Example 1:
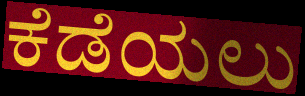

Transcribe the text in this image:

ಕೆಡೆಯಲು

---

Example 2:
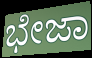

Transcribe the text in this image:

ಭೇಜಾ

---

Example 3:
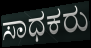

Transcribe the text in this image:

ಸಾಧಕರು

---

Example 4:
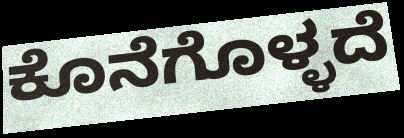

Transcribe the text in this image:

ಕೊನೆಗೊಳ್ಳದೆ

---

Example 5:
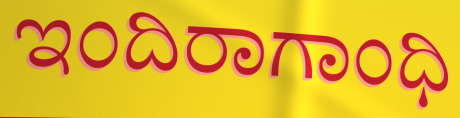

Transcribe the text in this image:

ಇಂದಿರಾಗಾಂಧಿ